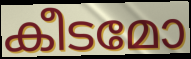
കീടമോ